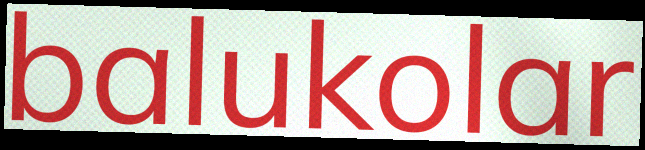
balukolar